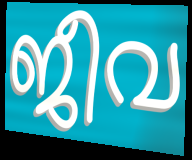
ജീവ